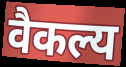
वैकल्य